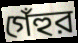
গেঁহুর